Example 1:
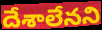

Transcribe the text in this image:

దేశాలేనని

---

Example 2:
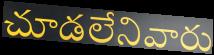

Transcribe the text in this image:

చూడలేనివారు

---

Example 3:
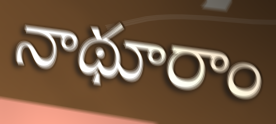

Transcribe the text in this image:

నాథూరాం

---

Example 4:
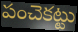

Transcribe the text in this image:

పంచెకట్టు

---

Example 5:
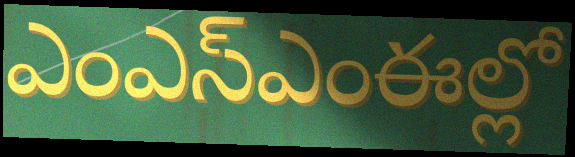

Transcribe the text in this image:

ఎంఎస్ఎంఈల్లో